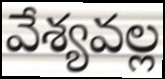
వేశ్యవల్ల